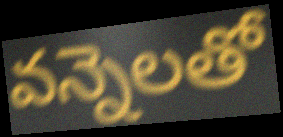
వన్నెలతో